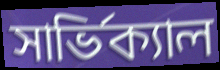
সার্ভিক্যাল